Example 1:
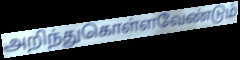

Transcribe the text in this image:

அறிந்துகொள்ளவேண்டும்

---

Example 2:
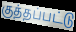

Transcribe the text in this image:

குத்தப்பட்டு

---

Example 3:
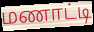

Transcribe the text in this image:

மணாட்டி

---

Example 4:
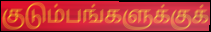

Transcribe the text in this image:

குடும்பங்களுக்குக்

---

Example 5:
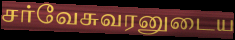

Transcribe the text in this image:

சர்வேசுவரனுடைய